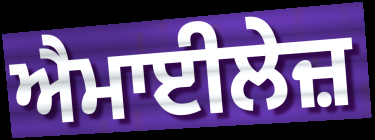
ਐਮਾਈਲੇਜ਼